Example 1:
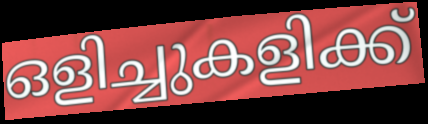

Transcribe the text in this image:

ഒളിച്ചുകളിക്ക്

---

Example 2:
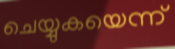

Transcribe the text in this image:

ചെയ്യുകയെന്ന്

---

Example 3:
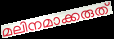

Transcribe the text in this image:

മലിനമാക്കരുത്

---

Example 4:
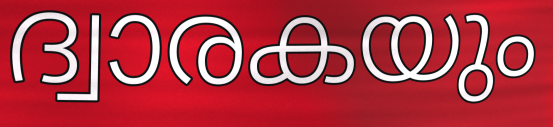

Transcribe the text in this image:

ദ്വാരകയും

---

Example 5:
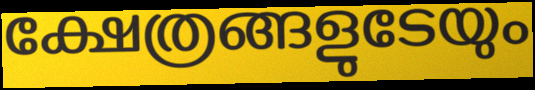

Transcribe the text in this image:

ക്ഷേത്രങ്ങളുടേയും